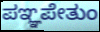
ಪಞ್ಞಪೇತುಂ